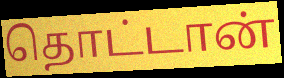
தொட்டான்